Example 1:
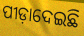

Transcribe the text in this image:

ପୀଡ଼ାଦେଇଛି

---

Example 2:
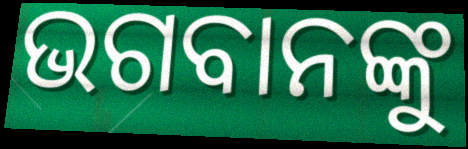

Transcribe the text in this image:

ଭଗବାନଙ୍କୁ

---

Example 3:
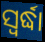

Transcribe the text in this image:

ସ୍ଵର୍ଦ୍ଧା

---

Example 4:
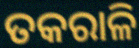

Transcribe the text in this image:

ତକରାଳି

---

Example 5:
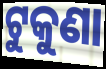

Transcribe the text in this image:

ଟୁକୁଣା